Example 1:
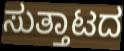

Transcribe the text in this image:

ಸುತ್ತಾಟದ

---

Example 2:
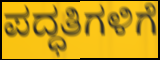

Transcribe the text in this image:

ಪದ್ಧತಿಗಳಿಗೆ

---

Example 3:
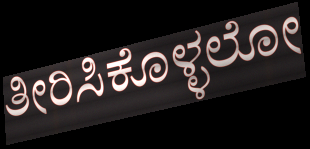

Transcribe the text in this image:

ತೀರಿಸಿಕೊಳ್ಳಲೋ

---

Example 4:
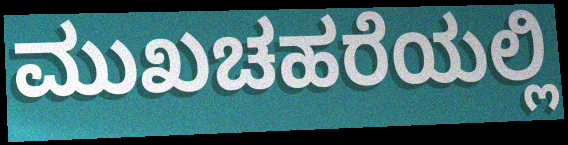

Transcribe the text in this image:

ಮುಖಚಹರೆಯಲ್ಲಿ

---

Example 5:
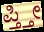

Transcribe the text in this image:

ಪ್ತ್ತೀ